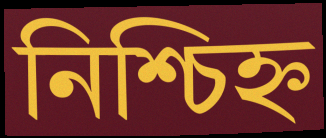
নিশ্চিহ্ন